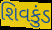
શિવકુંડ